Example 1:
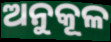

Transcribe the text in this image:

ଅନୁକୂଳ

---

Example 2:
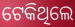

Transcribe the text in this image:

ଟେକିଥିଲେ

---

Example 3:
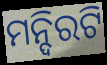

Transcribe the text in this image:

ମନ୍ଦିରଟି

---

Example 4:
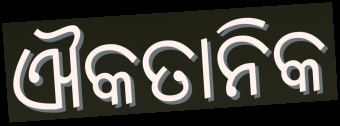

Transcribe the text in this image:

ଐକତାନିକ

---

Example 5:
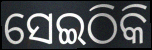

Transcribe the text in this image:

ସେଇଠିକି